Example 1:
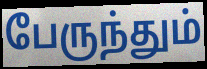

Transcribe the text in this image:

பேருந்தும்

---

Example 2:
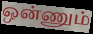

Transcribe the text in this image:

ஒன்ணும்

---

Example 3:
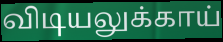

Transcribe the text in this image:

விடியலுக்காய்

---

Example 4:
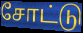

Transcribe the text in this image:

சோட்டு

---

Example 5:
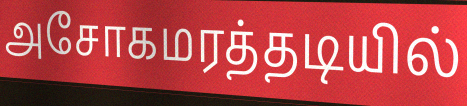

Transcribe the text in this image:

அசோகமரத்தடியில்